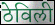
ठेविली